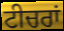
ਟੀਚਰਾਂ